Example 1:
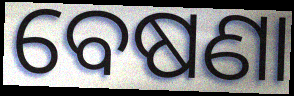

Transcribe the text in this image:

ବେଷଣା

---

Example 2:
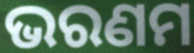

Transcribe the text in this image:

ଭରଣମ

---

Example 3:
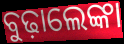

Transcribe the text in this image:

ବୁଢ଼ାଲେଙ୍କା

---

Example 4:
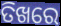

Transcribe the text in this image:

ତିଖରେ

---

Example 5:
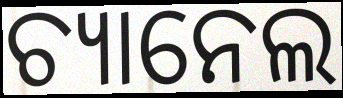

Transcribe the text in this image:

ଚ୍ୟାନେଲ